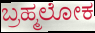
ಬ್ರಹ್ಮಲೋಕ